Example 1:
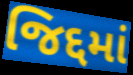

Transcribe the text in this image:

જિદ્દમાં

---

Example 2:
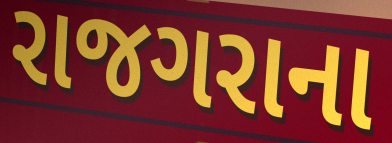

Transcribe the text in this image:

રાજગરાના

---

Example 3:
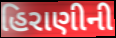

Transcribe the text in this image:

હિરાણીની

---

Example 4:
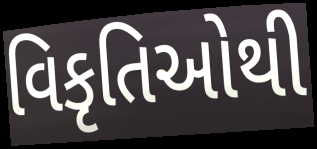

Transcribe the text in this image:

વિકૃતિઓથી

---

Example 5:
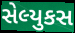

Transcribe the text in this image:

સેલ્યુકસ